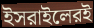
ইসরাইলেরই